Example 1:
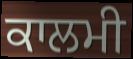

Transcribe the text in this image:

ਕਾਲਮੀ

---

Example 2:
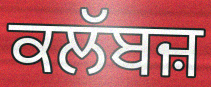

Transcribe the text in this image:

ਕਲੱਬਜ਼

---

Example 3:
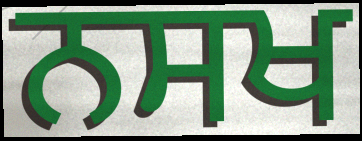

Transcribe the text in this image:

ਨਸਖ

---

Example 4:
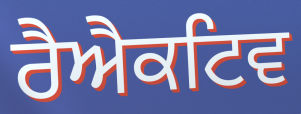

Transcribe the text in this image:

ਰੈਐਕਟਿਵ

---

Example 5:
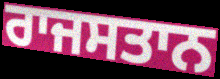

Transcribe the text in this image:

ਰਾਜਸਤਾਨ